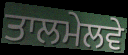
ਤਾਲਮੇਲਵੇ